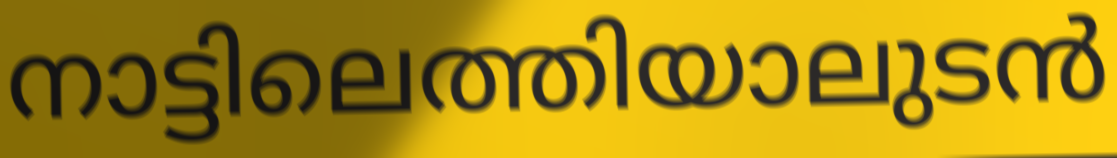
നാട്ടിലെത്തിയാലുടൻ